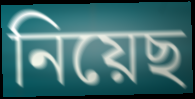
নিয়েছ